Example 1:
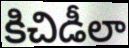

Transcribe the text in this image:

కిచిడీలా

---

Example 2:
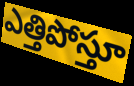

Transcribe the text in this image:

ఎత్తిపోస్తూ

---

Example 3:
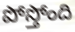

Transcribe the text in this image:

పోస్తోంది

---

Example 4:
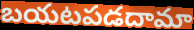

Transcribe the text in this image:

బయటపడదామా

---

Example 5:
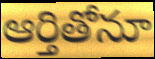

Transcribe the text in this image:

ఆర్తితోనూ